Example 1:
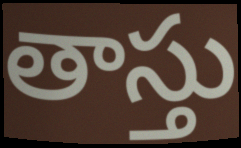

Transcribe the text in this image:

తాస్తు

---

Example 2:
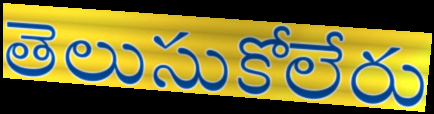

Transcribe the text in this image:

తెలుసుకోలేరు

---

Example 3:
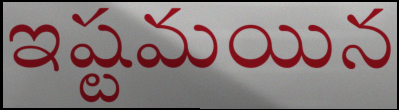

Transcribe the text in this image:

ఇష్టమయిన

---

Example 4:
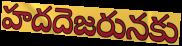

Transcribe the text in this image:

హదదెజరునకు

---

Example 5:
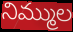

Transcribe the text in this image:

నిమ్ముల